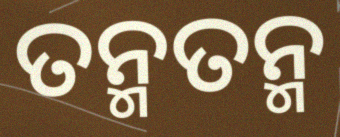
ତନ୍ମତନ୍ମ